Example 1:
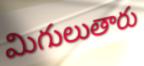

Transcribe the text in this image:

మిగులుతారు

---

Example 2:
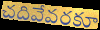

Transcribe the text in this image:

చదివేవరకూ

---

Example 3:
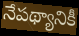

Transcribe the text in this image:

నేపథ్యానికీ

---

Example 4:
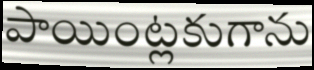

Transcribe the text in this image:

పాయింట్లకుగాను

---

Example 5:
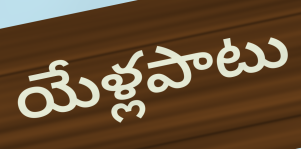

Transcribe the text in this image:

యేళ్లపాటు